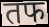
तफ